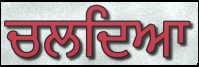
ਚਲਦਿਆ